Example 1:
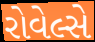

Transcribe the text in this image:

રોવેલ્સે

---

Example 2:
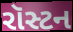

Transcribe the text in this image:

રૉસ્ટન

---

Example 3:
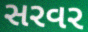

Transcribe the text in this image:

સરવર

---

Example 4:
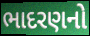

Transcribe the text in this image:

ભાદરણનો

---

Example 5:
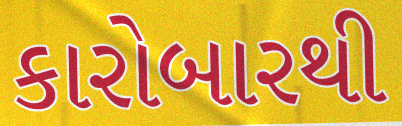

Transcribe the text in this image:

કારોબારથી